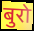
बुरो